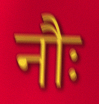
नौः